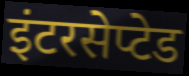
इंटरसेप्टेड